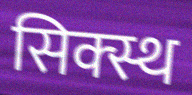
सिक्स्थ